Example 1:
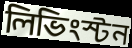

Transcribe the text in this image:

লিভিংস্টন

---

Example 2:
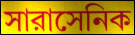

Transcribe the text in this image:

সারাসেনিক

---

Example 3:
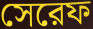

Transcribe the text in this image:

সেরেফ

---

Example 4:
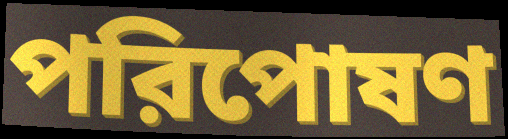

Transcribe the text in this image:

পরিপোষণ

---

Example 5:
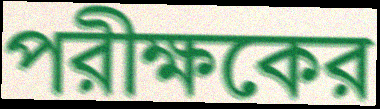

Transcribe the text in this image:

পরীক্ষকের